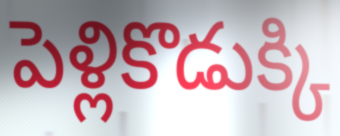
పెళ్లికొడుక్కి